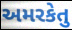
અમરકેતુ